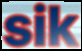
sik